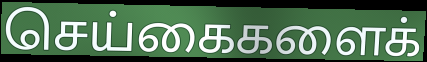
செய்கைகளைக்